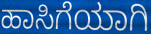
ಹಾಸಿಗೆಯಾಗಿ